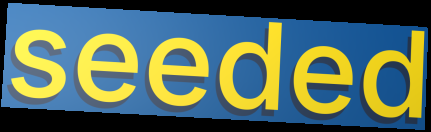
seeded